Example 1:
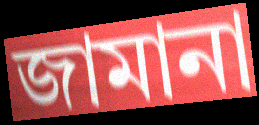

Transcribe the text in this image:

জামানা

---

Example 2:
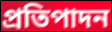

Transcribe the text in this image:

প্ৰতিপাদন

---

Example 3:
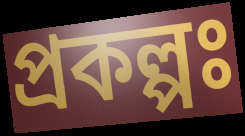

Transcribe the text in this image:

প্ৰকল্পঃ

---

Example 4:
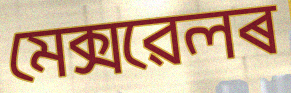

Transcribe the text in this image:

মেক্সৱেলৰ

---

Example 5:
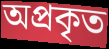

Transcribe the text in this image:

অপ্ৰকৃত